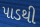
પાડથી